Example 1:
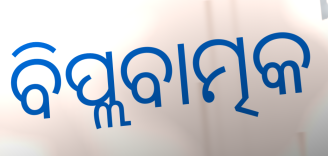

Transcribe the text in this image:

ବିପ୍ଲବାତ୍ମକ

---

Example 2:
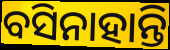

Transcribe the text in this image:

ବସିନାହାନ୍ତି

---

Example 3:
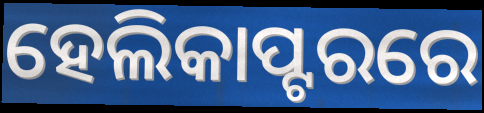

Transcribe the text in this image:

ହେଲିକାପ୍ଟରରେ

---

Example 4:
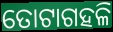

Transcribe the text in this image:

ତୋଟାଗହଳି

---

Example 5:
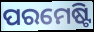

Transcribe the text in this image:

ପରମେଷ୍ଟି